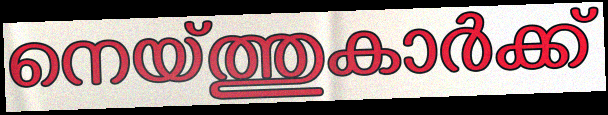
നെയ്ത്തുകാർക്ക്